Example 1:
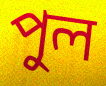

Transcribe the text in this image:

পুল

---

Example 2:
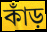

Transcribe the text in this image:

কাঁড়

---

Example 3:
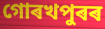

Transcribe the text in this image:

গোৰখপুৰৰ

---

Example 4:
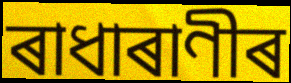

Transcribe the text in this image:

ৰাধাৰাণীৰ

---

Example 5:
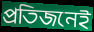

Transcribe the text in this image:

প্ৰতিজনেই